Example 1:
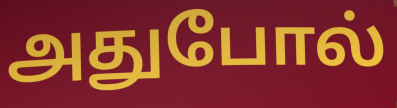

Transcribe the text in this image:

அதுபோல்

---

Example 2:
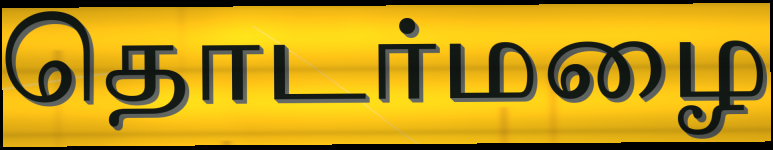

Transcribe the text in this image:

தொடர்மழை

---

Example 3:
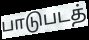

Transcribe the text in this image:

பாடுபடத்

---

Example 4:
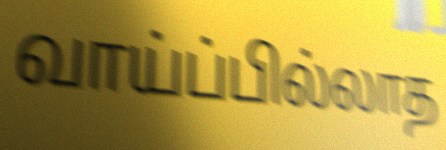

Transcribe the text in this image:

வாய்ப்பில்லாத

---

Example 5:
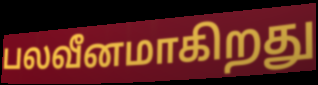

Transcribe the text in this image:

பலவீனமாகிறது